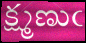
క్ష్మణుఁ